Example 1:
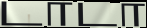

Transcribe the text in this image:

டாடா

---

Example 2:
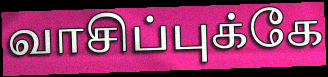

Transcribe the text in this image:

வாசிப்புக்கே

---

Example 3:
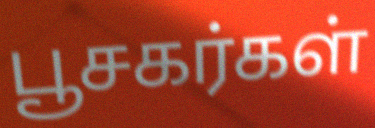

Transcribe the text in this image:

பூசகர்கள்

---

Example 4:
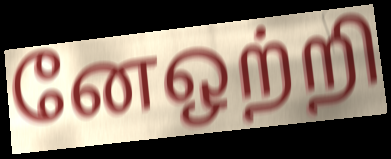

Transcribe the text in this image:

னேஒற்றி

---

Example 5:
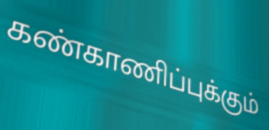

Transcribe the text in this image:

கண்காணிப்புக்கும்